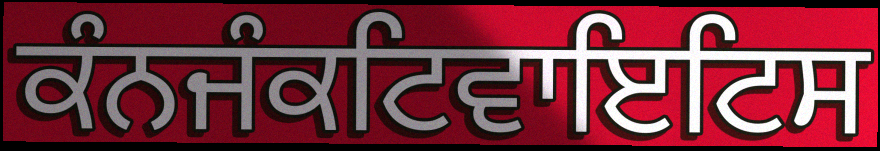
ਕੰਨਜੰਕਟਿਵਾਇਟਿਸ